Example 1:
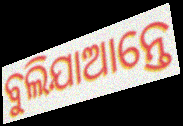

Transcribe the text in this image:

ବୁଲିଯାଆନ୍ତେ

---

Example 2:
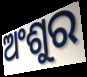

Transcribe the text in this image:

ଅଂଶୁର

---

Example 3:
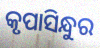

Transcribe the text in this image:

କୃପାସିନ୍ଧୁର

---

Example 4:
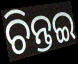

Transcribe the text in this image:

ଚିନ୍ତଇ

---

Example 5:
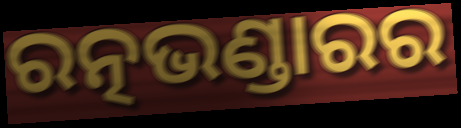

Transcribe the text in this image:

ରତ୍ନଭଣ୍ଡାରର